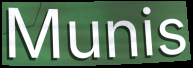
Munis